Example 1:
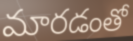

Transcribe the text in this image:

మారడంతో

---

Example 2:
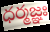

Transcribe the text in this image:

ధర్మజ్ఞః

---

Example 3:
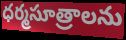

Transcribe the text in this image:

ధర్మసూత్రాలను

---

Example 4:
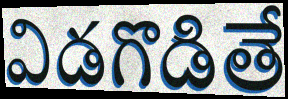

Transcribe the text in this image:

విడగొడితే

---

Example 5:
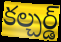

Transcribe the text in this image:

కల్చర్డ్